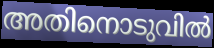
അതിനൊടുവിൽ